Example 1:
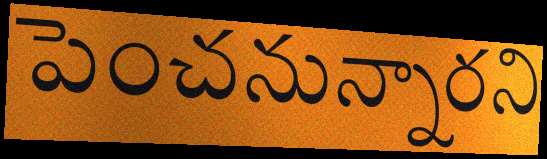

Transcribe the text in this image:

పెంచనున్నారని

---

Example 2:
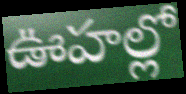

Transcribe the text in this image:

ఊహల్లో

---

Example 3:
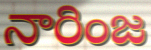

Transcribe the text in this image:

నారింజ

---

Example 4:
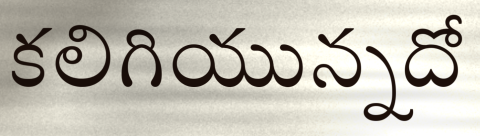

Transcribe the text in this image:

కలిగియున్నదో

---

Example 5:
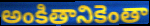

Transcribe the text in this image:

అంకితానికెంతా